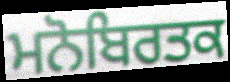
ਮਨੋਬਿਰਤਕ